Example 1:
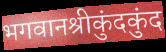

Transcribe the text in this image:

भगवानश्रीकुंदकुंद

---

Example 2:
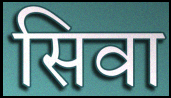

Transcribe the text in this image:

सिवा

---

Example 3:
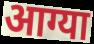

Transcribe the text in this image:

आग्या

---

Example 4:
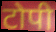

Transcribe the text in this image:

टोपी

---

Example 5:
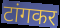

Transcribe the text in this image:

टांगकर